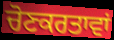
ਚੋਣਕਰਤਾਵਾਂ